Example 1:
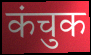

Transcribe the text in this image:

कंचुक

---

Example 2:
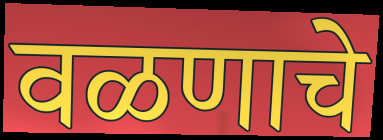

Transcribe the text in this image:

वळणाचे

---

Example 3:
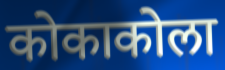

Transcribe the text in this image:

कोकाकोला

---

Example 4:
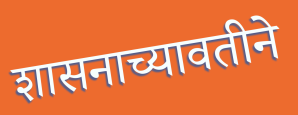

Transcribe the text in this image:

शासनाच्यावतीने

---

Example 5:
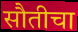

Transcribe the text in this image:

सौतीचा